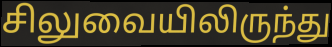
சிலுவையிலிருந்து